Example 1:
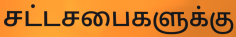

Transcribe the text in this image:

சட்டசபைகளுக்கு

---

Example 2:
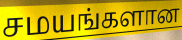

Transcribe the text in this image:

சமயங்களான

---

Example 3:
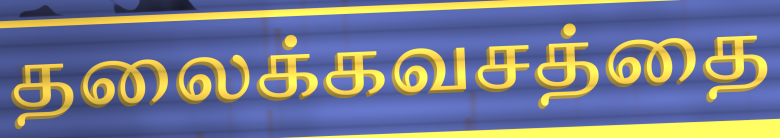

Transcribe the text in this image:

தலைக்கவசத்தை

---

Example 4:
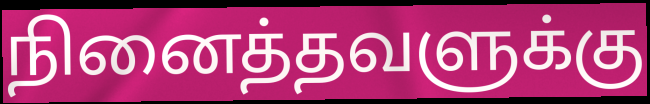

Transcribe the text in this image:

நினைத்தவளுக்கு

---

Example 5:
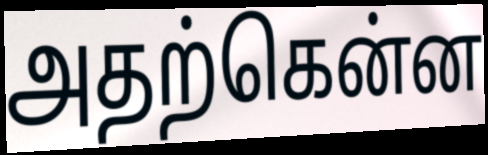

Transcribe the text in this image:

அதற்கென்ன